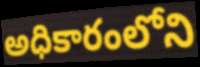
అధికారంలోని